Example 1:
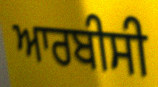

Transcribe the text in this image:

ਆਰਬੀਸੀ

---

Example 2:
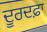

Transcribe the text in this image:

ਦੂਰਦਫ਼ਾ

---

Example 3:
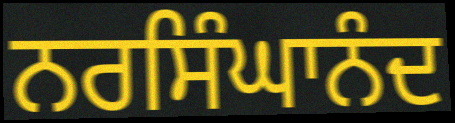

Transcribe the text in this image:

ਨਰਸਿੰਘਾਨੰਦ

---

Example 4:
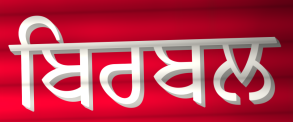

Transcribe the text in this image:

ਬਿਰਬਲ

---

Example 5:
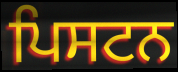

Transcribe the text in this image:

ਪਿਸਟਨ